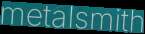
metalsmith